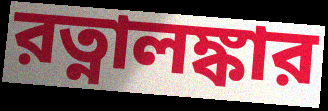
রত্নালঙ্কার